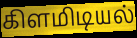
கிளமிடியல்